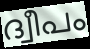
ദ്വീപം